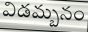
విడమ్బనం